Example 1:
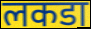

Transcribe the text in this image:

लकडा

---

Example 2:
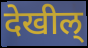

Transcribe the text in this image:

देखील्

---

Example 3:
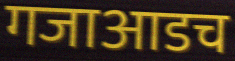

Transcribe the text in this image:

गजाआडच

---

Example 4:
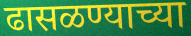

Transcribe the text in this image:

ढासळण्याच्या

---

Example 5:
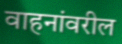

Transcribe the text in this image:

वाहनांवरील